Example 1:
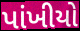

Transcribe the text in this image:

પાંખીયો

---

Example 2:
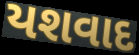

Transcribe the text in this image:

યશવાદ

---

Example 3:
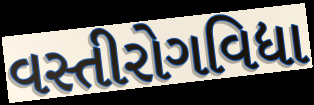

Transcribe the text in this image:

વસ્તીરોગવિદ્યા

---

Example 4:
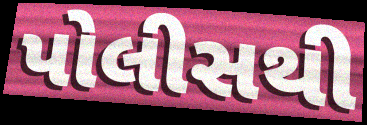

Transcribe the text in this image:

પોલીસથી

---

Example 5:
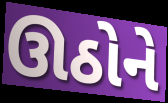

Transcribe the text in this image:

ઊઠોને